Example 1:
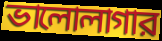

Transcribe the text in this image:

ভালোলাগার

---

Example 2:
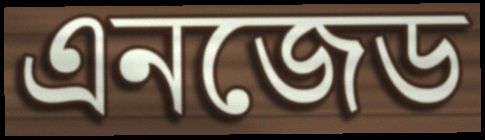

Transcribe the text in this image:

এনজেড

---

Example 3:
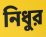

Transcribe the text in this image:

নিধুর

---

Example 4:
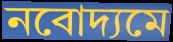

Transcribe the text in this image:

নবোদ্যমে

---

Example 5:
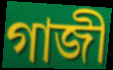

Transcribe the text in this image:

গাজী